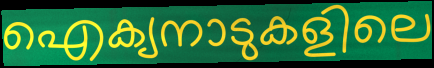
ഐക്യനാടുകളിലെ